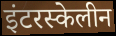
इंटरस्केलीन